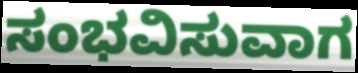
ಸಂಭವಿಸುವಾಗ